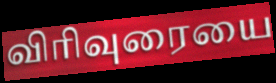
விரிவுரையை